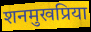
शनमुखप्रिया